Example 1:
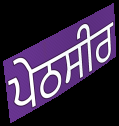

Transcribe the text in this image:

ਪੇਠਸੀਰ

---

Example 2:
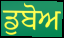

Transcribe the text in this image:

ਡੁਬੋਅ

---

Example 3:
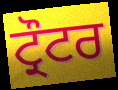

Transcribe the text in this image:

ਟ੍ਰੌਟਰ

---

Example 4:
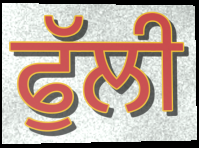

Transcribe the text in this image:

ਫੁੱਲੀ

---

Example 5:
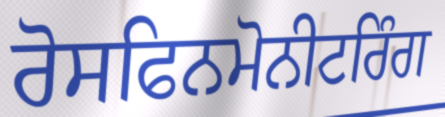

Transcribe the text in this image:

ਰੋਸਫਿਨਮੋਨੀਟਰਿੰਗ